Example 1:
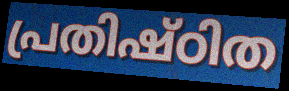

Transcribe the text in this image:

പ്രതിഷ്ഠിത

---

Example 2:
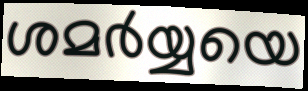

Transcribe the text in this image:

ശമർയ്യയെ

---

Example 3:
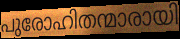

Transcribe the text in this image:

പുരോഹിതന്മാരായി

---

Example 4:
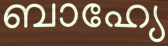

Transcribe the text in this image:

ബാഹ്യേ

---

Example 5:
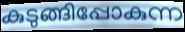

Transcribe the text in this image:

കുടുങ്ങിപ്പോകുന്ന